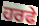
ਹਰਫੇ